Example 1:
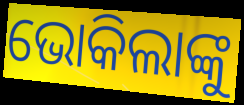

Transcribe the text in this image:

ଭୋକିଲାଙ୍କୁ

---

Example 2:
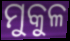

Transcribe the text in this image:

ମୁକୁଳ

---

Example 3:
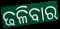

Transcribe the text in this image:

ଢଳିବାର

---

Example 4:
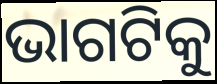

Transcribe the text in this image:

ଭାଗଟିକୁ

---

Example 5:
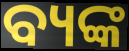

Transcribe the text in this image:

ବ୍ୟଙ୍କ